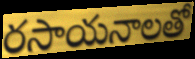
రసాయనాలతో